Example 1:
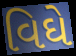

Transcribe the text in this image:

વિઘે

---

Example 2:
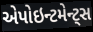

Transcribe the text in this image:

એપોઇન્ટમેન્ટ્સ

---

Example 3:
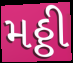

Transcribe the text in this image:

મઠ્ઠી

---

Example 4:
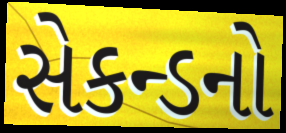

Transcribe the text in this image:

સેકન્ડનો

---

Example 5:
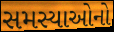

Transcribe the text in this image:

સમસ્યાઓનો